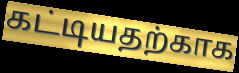
கட்டியதற்காக